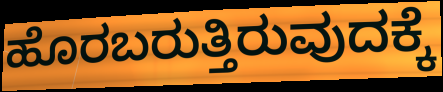
ಹೊರಬರುತ್ತಿರುವುದಕ್ಕೆ